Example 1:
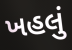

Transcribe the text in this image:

ખહલું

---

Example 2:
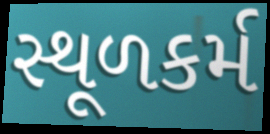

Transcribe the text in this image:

સ્થૂળકર્મ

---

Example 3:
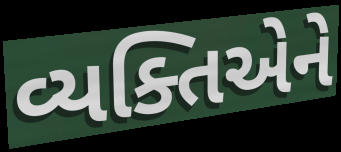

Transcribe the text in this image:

વ્યક્તિએને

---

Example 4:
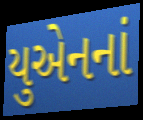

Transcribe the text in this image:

યુએનનાં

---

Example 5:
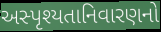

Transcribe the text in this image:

અસ્પૃશ્યતાનિવારણનો